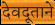
देवदूताने